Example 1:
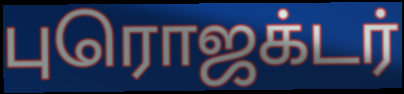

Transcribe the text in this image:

புரொஜக்டர்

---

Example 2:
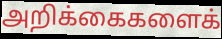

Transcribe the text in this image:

அறிக்கைகளைக்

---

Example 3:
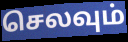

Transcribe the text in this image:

செலவும்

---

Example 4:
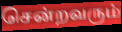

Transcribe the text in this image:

சென்றவரும்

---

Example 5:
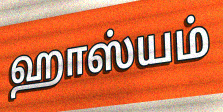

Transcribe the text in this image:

ஹாஸ்யம்